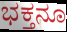
ಭಕ್ತನೂ